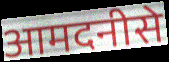
आमदनीसे